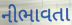
નીભાવતા